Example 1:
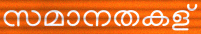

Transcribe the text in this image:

സമാനതകള്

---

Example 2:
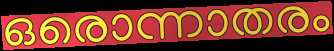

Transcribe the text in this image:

ഒരൊന്നാതരം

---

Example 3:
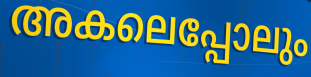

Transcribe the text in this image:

അകലെപ്പോലും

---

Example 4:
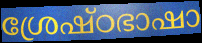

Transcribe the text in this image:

ശ്രേഷ്ഠഭാഷാ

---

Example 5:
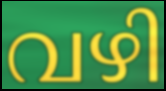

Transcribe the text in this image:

വഴി